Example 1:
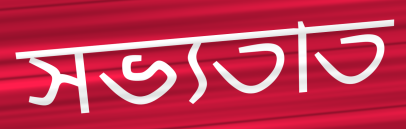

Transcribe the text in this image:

সভ্যতাত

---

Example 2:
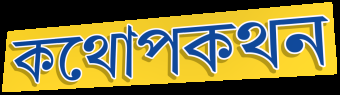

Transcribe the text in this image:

কথোপকথন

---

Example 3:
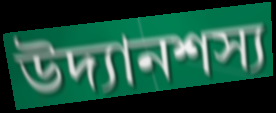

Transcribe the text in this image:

উদ্যানশস্য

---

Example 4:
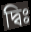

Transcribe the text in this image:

দ্বিঃ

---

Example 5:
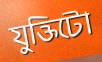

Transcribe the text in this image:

যুক্তিটো